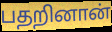
பதறினான்